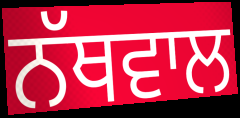
ਨੱਥਵਾਲ